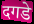
दगडे